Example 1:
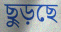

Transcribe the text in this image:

ছুড়ছে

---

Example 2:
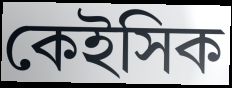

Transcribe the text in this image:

কেইসিক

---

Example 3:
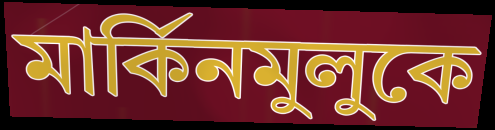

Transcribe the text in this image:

মার্কিনমুলুকে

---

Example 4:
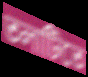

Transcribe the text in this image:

তলাটিতে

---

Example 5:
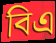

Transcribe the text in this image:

বিএ